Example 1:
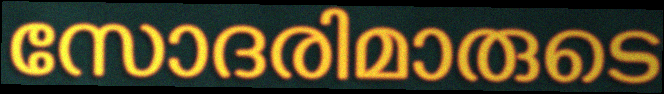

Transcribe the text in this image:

സോദരിമാരുടെ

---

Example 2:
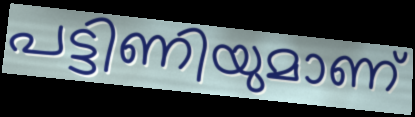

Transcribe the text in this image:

പട്ടിണിയുമാണ്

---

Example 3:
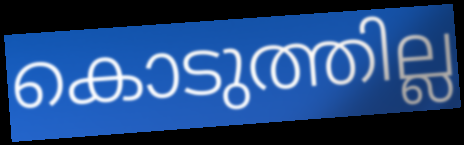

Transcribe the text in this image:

കൊടുത്തില്ല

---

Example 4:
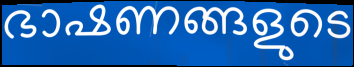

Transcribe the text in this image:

ഭാഷണങ്ങളുടെ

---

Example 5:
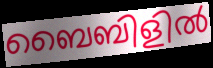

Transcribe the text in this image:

ബൈബിളിൽ